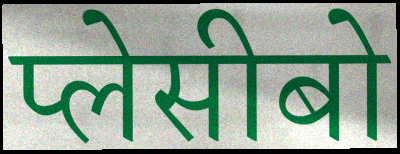
प्लेसीबो